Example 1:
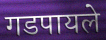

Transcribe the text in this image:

गडपायले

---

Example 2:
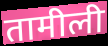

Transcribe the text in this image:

तामीली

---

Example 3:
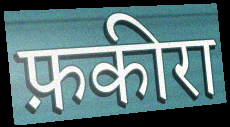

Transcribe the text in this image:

फ़कीरा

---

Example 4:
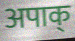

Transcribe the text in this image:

अपाक्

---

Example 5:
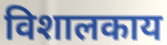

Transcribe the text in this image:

विशालकाय